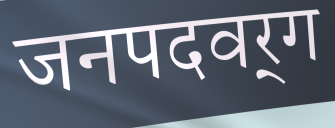
जनपदवर्ग